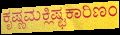
ಕೃಷ್ಣಮಕ್ಲಿಷ್ಟಕಾರಿಣಂ